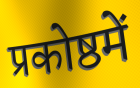
प्रकोष्ठमें